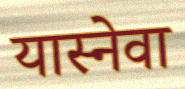
यास्नेवा